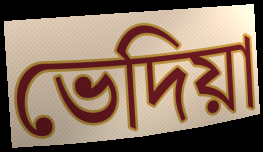
ভেদিয়া